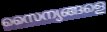
സൈന്യങ്ങളെ